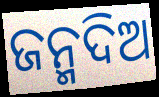
ଜନ୍ମଦିଅ